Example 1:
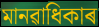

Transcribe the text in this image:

মানৱাধিকাৰ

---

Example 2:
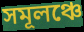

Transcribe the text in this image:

সমূলঞ্চে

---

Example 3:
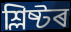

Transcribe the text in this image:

শ্লিষ্টৰ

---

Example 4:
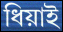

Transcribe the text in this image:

ধিয়াই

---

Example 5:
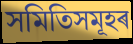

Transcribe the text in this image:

সমিতিসমূহৰ